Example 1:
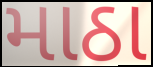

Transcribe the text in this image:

માઠા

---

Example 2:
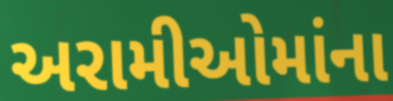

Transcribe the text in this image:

અરામીઓમાંના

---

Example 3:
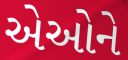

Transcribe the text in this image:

એઓને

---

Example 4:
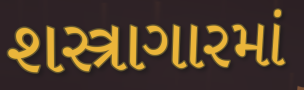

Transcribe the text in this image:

શસ્ત્રાગારમાં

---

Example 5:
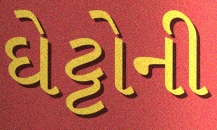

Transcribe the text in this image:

ઘેટ્ટોની